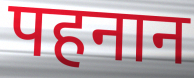
पहनान